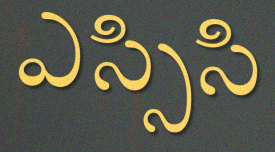
ఎస్సిసి